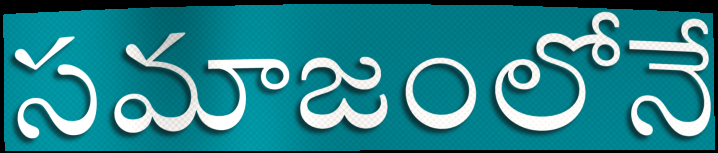
సమాజంలోనే